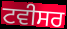
ਟਵੀਸਰ